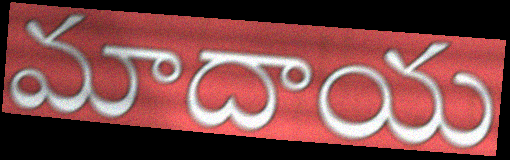
మాదాయ